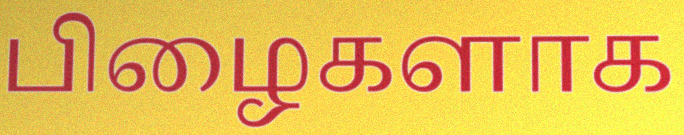
பிழைகளாக